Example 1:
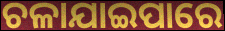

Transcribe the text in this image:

ଚଳାଯାଇପାରେ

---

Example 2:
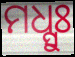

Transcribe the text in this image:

ମଧ୍ସୁଃ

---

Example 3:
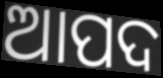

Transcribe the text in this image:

ଆପଦ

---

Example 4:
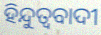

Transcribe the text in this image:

ହିନ୍ଦୁତ୍ବବାଦୀ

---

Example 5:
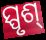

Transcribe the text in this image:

ସ୍ପୃଶ୍